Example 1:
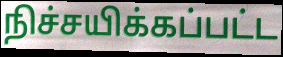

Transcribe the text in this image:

நிச்சயிக்கப்பட்ட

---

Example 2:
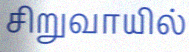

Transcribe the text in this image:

சிறுவாயில்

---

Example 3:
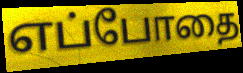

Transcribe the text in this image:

எப்போதை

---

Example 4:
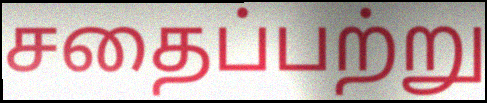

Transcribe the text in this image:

சதைப்பற்று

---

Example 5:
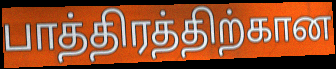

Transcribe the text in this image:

பாத்திரத்திற்கான